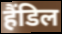
हैंडिल